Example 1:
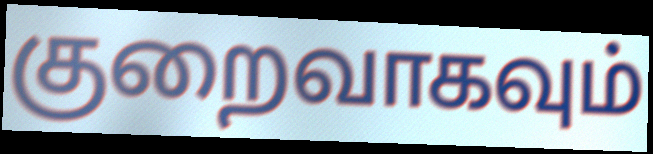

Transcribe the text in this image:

குறைவாகவும்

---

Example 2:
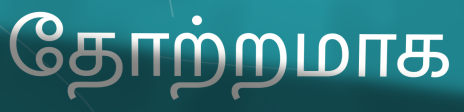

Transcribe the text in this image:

தோற்றமாக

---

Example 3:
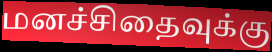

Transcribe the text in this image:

மனச்சிதைவுக்கு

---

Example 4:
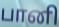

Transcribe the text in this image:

பானி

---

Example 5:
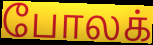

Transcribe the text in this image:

போலக்